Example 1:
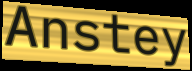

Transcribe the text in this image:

Anstey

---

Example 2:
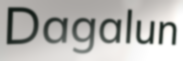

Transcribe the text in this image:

Dagalun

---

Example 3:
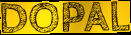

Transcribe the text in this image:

DOPAL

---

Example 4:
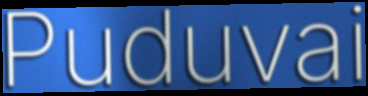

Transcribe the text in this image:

Puduvai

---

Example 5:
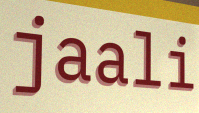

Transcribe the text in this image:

jaali